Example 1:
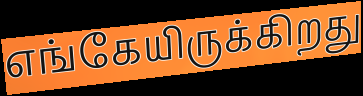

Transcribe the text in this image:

எங்கேயிருக்கிறது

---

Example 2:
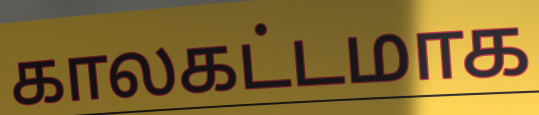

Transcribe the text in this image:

காலகட்டமாக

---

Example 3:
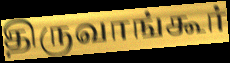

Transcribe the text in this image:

திருவாங்கூர்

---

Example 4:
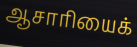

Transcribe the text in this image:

ஆசாரியைக்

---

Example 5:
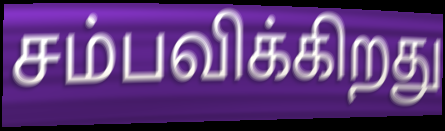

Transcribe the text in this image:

சம்பவிக்கிறது